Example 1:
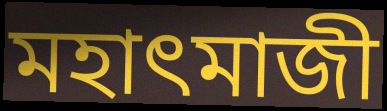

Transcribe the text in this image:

মহাৎমাজী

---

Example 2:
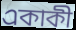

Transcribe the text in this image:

একাকী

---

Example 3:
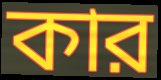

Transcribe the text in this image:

কার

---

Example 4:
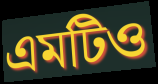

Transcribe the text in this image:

এমটিও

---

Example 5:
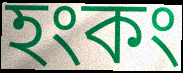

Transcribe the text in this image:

হংকং